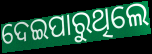
ଦେଇପାରୁଥିଲେ